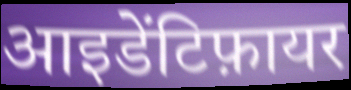
आइडेंटिफ़ायर